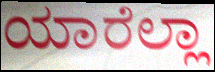
ಯಾರೆಲ್ಲಾ